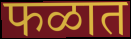
फळात